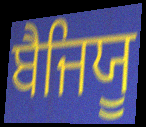
ਬੈਜਿਯੂ